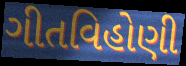
ગીતવિહોણી